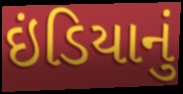
ઇંડિયાનું